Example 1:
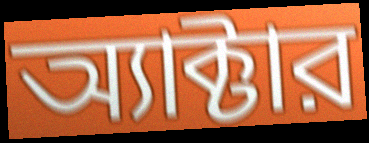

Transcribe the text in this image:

অ্যাক্টার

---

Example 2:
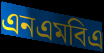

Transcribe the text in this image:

এনএমবিএ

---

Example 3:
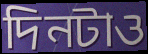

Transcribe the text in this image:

দিনটাও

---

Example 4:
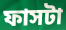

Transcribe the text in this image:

ফাসটা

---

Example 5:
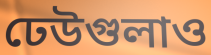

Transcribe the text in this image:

ঢেউগুলাও